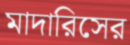
মাদারিসের